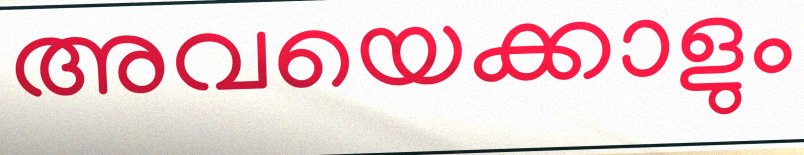
അവയെക്കാളും